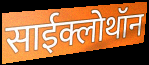
साईक्लोथॉन